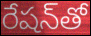
రేషన్‌తో